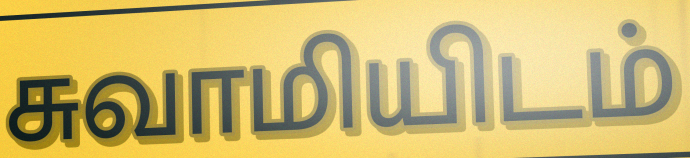
சுவாமியிடம்